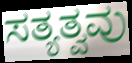
ಸತ್ಯತ್ವವು